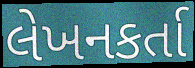
લેખનકર્તા